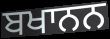
ਬਖਾਨਨ